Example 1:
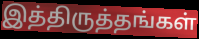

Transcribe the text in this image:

இத்திருத்தங்கள்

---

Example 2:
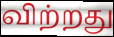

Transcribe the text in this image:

விற்றது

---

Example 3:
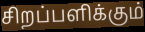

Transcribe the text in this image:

சிறப்பளிக்கும்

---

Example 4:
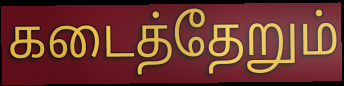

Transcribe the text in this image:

கடைத்தேறும்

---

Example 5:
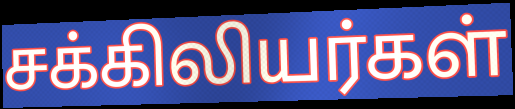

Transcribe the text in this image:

சக்கிலியர்கள்